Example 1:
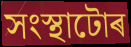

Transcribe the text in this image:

সংস্থাটোৰ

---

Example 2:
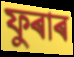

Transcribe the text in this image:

ফুৰাৰ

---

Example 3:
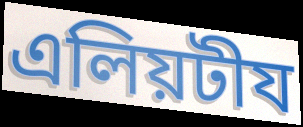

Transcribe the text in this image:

এলিয়টীয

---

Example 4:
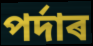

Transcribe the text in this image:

পৰ্দাৰ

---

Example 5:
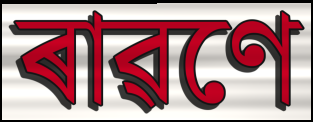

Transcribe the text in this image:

ৰাৱণে